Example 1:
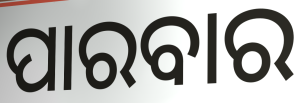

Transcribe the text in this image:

ପାରବାର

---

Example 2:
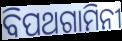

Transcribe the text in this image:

ବିପଥଗାମିନୀ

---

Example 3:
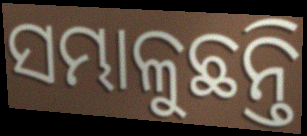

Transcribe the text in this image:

ସମ୍ଭାଳୁଛନ୍ତି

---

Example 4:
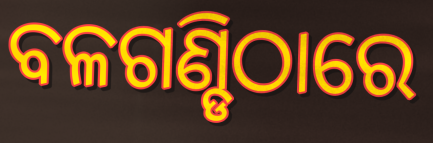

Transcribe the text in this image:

ବଳଗଣ୍ଡିଠାରେ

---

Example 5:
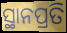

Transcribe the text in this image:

ସ୍ଥାନପ୍ରତି